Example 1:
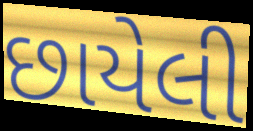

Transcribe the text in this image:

છાયેલી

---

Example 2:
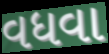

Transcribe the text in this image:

વધવા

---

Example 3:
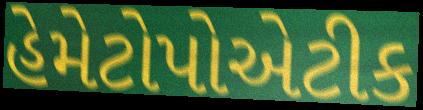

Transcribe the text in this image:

હેમેટોપોએટીક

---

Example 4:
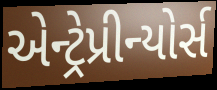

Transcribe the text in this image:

એન્ટ્રેપ્રીન્યોર્સ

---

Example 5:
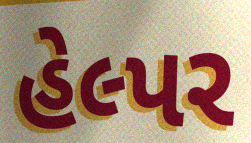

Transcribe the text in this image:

હેલ્પર